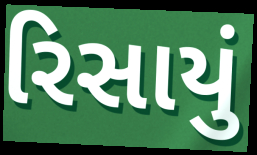
રિસાયું